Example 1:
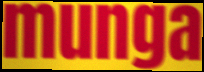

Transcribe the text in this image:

munga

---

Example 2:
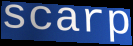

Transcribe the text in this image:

scarp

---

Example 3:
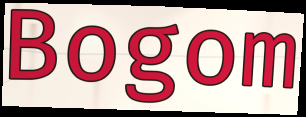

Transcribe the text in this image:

Bogom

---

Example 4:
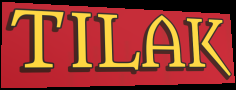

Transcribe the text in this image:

TILAK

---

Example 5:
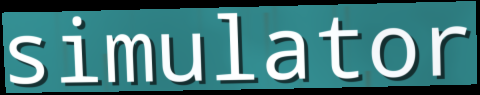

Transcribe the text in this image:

simulator